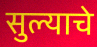
सुल्याचे